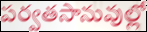
పర్వతసానువుల్లో